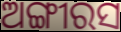
ଅଙ୍ଗୀରସ